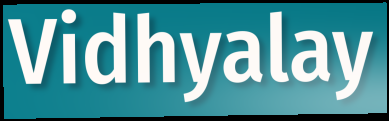
Vidhyalay